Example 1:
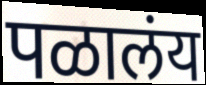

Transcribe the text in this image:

पळालंय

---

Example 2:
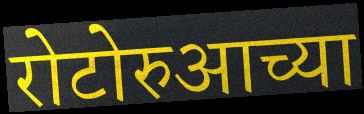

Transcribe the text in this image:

रोटोरुआच्या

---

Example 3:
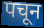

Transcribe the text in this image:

पचून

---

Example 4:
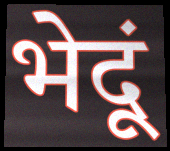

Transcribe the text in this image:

भेदूं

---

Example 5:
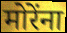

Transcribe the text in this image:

मोरेंना